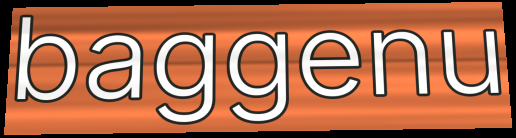
baggenu